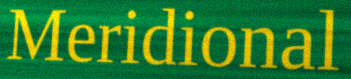
Meridional